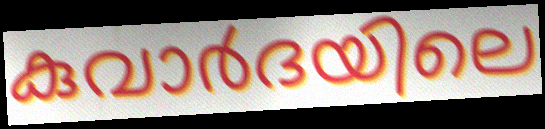
കുവാർദയിലെ